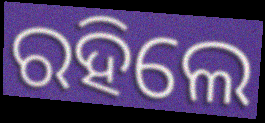
ରହିଲେ